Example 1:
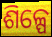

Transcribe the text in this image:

ଶିଳ୍ପେ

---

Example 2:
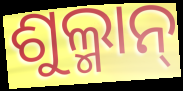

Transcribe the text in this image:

ଶୁଲ୍ମାନ୍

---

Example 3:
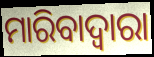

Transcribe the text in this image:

ମାରିବାଦ୍ୱାରା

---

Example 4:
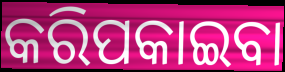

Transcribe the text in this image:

କରିପକାଇବା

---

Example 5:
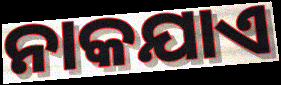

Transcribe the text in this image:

ନାକଯାଏ